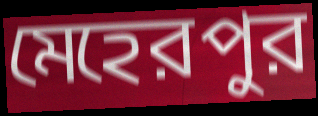
মেহেরপুর